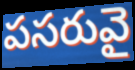
పసరువై